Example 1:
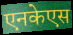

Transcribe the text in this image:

एनकेएस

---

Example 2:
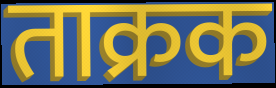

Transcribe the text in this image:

ताक्रक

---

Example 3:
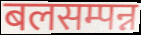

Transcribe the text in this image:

बलसम्पन्न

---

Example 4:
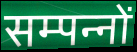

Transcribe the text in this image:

सम्पन्नों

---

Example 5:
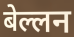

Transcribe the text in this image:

बेल्लन